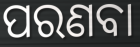
ପରଣବା